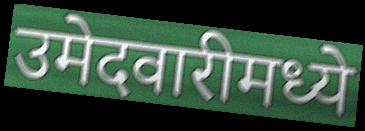
उमेदवारीमध्ये